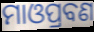
ମାଓପ୍ରବଣ